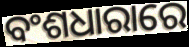
ବଂଶଧାରାରେ